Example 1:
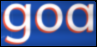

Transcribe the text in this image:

goa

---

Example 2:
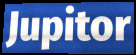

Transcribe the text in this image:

Jupitor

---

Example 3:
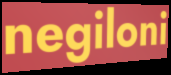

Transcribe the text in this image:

negiloni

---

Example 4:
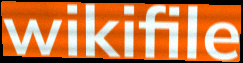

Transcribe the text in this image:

wikifile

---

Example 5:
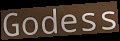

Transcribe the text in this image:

Godess